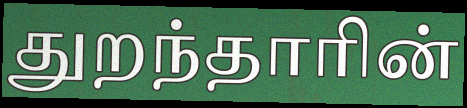
துறந்தாரின்